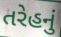
તરેહનું